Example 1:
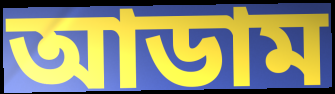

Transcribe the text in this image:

আডাম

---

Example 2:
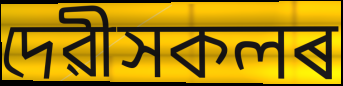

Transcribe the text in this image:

দেৱীসকলৰ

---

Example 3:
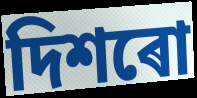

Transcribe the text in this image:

দিশৰো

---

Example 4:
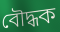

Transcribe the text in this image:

বৌদ্ধক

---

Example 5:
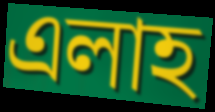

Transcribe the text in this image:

এলাহ